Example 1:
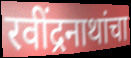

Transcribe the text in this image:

रवींद्रनाथांचा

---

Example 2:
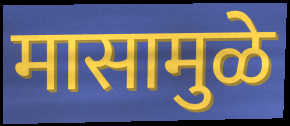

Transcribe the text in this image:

मासामुळे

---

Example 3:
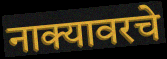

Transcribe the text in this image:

नाक्यावरचे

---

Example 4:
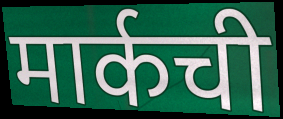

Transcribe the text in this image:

मार्कची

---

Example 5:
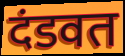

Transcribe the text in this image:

दंडवत